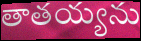
తాతయ్యను